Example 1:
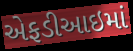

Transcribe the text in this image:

એફડીઆઇમાં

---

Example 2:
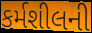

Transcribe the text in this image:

કર્મશીલની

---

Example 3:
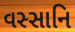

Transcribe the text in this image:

વસ્સાનિ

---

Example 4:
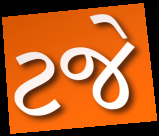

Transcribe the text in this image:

ટજે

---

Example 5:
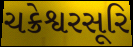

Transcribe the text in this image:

ચક્રેશ્વરસૂરિ